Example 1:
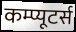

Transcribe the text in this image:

कम्प्यूटर्स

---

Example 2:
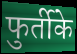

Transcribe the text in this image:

फुर्तीके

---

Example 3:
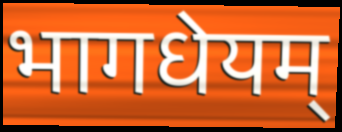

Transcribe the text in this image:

भागधेयम्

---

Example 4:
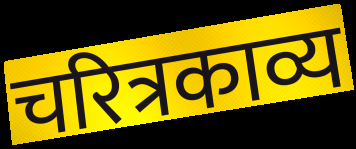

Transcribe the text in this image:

चरित्रकाव्य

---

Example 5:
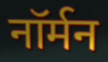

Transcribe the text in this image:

नॉर्मन